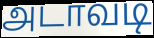
அடாவடி